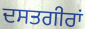
ਦਸਤਗੀਰਾਂ